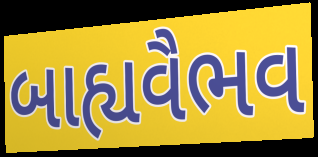
બાહ્યવૈભવ